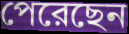
পেরেছেন